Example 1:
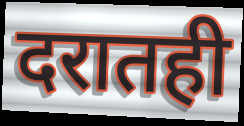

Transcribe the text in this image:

दरातही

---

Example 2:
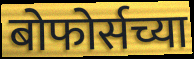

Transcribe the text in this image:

बोफोर्सच्या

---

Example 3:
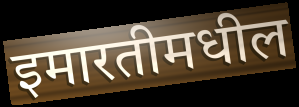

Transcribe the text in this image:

इमारतीमधील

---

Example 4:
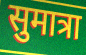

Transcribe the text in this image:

सुमात्रा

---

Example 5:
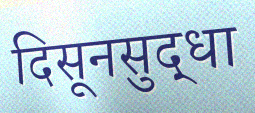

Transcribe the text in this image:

दिसूनसुद्धा